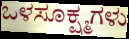
ಒಳಸೂಕ್ಷ್ಮಗಳು